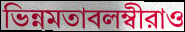
ভিন্নমতাবলম্বীরাও